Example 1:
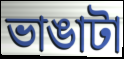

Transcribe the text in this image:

ভাঙাটা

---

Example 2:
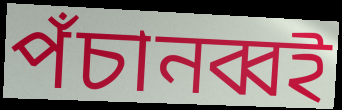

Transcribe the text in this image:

পঁচানব্বই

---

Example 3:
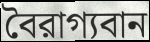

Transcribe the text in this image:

বৈরাগ্যবান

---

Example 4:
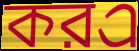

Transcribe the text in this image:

করএ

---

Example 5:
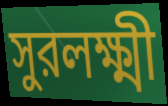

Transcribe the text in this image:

সুরলক্ষ্মী